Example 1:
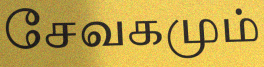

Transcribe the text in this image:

சேவகமும்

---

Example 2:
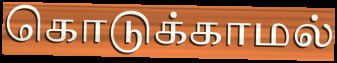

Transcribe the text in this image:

கொடுக்காமல்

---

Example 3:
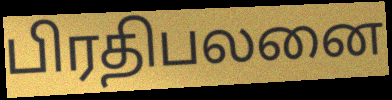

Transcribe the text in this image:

பிரதிபலனை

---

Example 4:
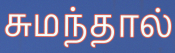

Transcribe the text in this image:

சுமந்தால்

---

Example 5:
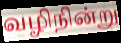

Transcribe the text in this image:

வழிநின்று